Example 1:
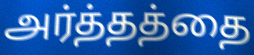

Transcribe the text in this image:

அர்த்தத்தை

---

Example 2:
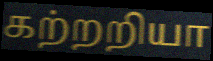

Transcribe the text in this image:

கற்றறியா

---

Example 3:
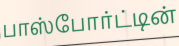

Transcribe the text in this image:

பாஸ்போர்ட்டின்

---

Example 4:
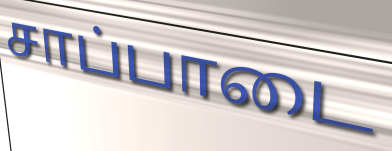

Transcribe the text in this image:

சாப்பாடை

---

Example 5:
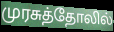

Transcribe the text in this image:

முரசுத்தோலில்